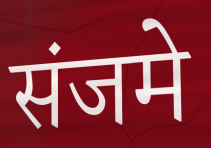
संजमे